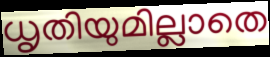
ധൃതിയുമില്ലാതെ